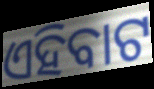
ଏହିବାଟ